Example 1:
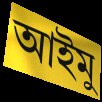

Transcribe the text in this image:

আইমু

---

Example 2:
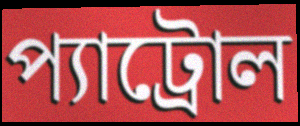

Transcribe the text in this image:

প্যাট্রোল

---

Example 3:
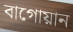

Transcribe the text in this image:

বাগোয়ান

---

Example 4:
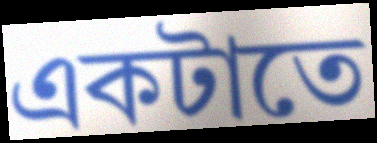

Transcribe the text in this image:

একটাতে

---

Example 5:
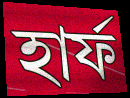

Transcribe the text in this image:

হার্ফ